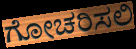
ಗೋಚರಿಸಲಿ